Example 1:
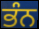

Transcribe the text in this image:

ਭੰਨ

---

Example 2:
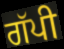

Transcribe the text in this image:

ਗੱਪੀ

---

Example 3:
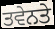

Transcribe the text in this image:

ਤਵੇਨਤੇ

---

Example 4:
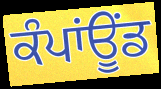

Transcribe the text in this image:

ਕੰਪਾਂਊਂਡ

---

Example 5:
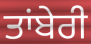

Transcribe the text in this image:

ਤਾਂਬੇਰੀ